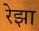
रेझा